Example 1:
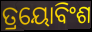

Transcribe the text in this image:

ତ୍ରୟୋବିଂଶ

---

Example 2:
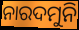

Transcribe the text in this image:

ନାରଦମୁନି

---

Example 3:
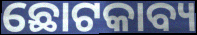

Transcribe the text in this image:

ଛୋଟକାବ୍ୟ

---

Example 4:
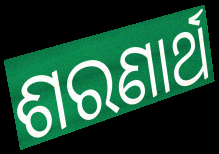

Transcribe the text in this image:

ଶରଣାର୍ଥ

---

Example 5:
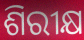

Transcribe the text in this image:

ଶିରୀକ୍ଷ